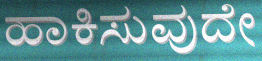
ಹಾಕಿಸುವುದೇ